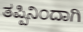
ತಪ್ಪಿನಿಂದಾಗಿ